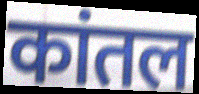
कांतल